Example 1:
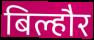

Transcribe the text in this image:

बिल्हौर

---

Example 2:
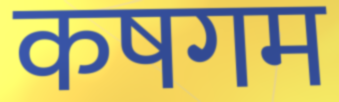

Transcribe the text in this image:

कषगम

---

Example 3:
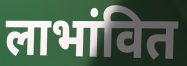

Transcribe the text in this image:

लाभांवित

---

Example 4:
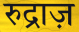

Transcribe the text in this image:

रुद्राज़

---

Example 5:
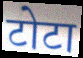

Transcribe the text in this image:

टोटा